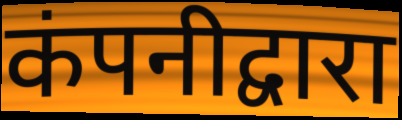
कंपनीद्वारा